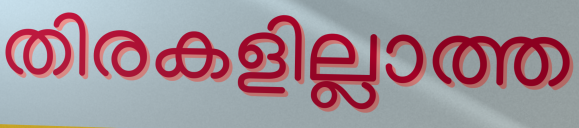
തിരകളില്ലാത്ത